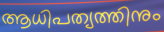
ആധിപത്യത്തിനും